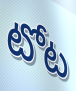
టోట